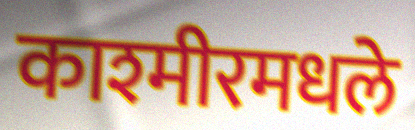
काश्‍मीरमधले